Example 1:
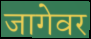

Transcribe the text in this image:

जागेवर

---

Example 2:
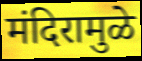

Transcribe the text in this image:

मंदिरामुळे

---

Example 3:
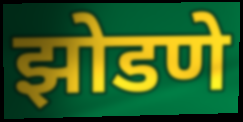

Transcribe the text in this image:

झोडणे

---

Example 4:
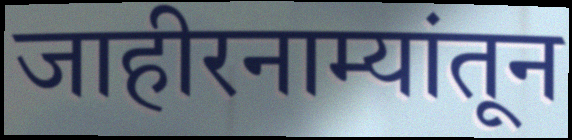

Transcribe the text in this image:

जाहीरनाम्यांतून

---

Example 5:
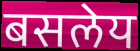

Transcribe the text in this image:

बसलेय